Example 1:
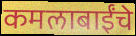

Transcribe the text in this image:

कमलाबाईंचे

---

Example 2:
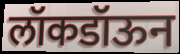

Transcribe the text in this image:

लॉकडॉऊन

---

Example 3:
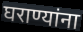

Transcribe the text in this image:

घराण्यांना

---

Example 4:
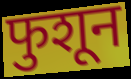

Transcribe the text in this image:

फुशून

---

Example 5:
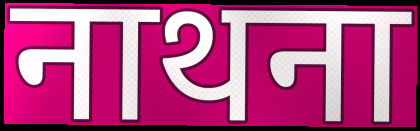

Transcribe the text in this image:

नाथना